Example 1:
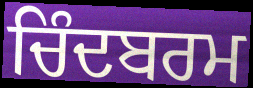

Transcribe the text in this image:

ਚਿੰਦਬਰਮ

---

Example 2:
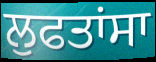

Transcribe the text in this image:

ਲੁਫਤਾਂਸਾ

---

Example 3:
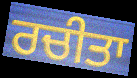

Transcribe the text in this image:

ਰਚੀਤਾ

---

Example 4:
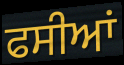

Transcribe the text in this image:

ਫਸੀਆਂ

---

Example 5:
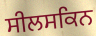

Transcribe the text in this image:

ਸੀਲਸਕਿਨ